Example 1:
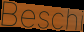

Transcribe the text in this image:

Beschi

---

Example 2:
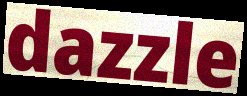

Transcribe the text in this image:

dazzle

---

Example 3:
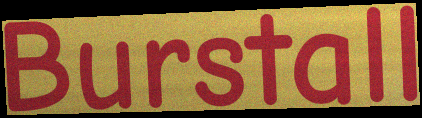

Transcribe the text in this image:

Burstall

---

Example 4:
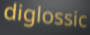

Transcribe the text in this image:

diglossic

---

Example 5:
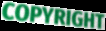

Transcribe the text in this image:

COPYRIGHT